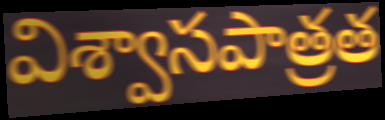
విశ్వాసపాత్రత